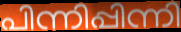
പിന്നിപ്പിന്നി